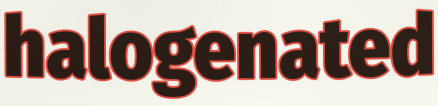
halogenated